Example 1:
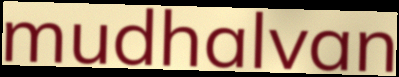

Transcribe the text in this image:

mudhalvan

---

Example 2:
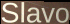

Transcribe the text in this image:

Slavo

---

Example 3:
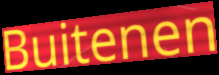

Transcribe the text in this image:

Buitenen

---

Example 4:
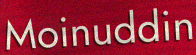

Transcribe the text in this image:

Moinuddin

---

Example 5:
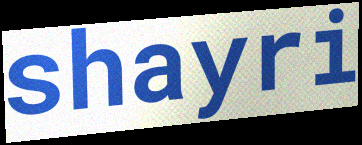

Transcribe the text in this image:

shayri